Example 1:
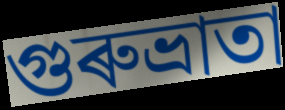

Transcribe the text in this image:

গুৰুভ্ৰাতা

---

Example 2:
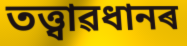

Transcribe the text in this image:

তত্ত্বাৱধানৰ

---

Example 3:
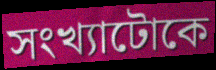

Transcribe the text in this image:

সংখ্যাটোকে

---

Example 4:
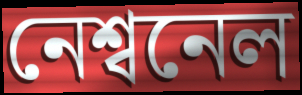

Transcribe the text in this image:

নেশ্বনেল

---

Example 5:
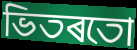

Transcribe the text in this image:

ভিতৰতো